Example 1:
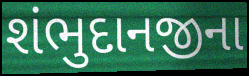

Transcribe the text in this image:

શંભુદાનજીના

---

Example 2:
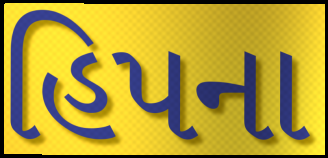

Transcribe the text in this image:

હિપના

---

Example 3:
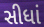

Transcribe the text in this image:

સીધાં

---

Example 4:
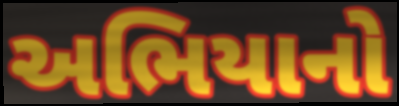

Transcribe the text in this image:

અભિયાનો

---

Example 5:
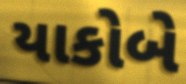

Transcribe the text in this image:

યાકોબે